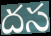
దస